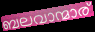
ബലവാന്മാര്